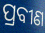
ପ୍ରବୀଣ